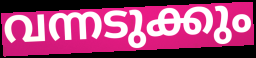
വന്നടുക്കും